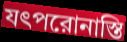
যৎপরোনাস্তি